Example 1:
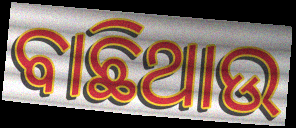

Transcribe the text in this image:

ବାଛିଥାଉ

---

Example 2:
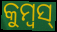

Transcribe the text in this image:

କୁମ୍ବସ୍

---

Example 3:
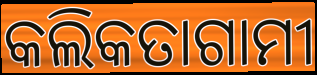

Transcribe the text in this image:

କଲିକତାଗାମୀ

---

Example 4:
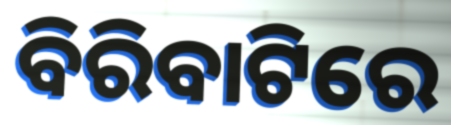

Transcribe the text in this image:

ବିରିବାଟିରେ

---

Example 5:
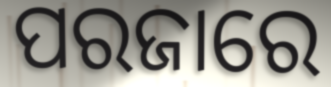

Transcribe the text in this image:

ପରଜାରେ